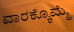
ವಾರಕ್ಕೊಮ್ಮೆ